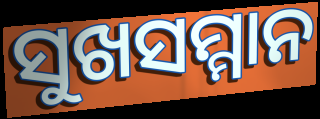
ସୁଖସମ୍ମାନ